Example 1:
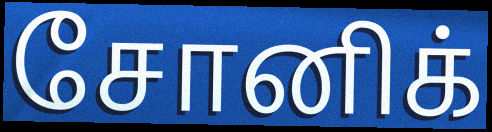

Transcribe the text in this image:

சோனிக்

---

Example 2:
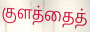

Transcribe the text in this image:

குளத்தைத்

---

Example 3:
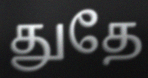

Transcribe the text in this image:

துதே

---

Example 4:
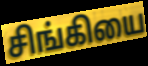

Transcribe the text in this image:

சிங்கியை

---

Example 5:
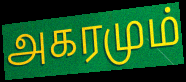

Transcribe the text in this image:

அகரமும்